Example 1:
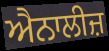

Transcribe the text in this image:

ਐਨਾਲੀਜ਼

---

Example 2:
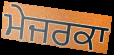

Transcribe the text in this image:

ਮੇਜਰਕਾ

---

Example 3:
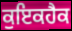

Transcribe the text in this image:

ਕੁਇਕਹੈਕ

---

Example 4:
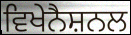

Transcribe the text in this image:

ਵਿਖੇਨੈਸ਼ਨਲ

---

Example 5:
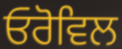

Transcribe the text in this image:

ਓਰੋਵਿਲ